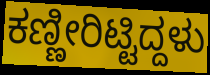
ಕಣ್ಣೀರಿಟ್ಟಿದ್ದಳು